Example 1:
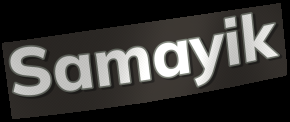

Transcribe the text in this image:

Samayik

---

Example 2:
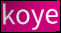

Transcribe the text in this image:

koye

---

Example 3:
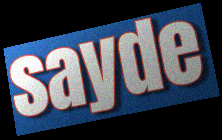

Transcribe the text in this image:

sayde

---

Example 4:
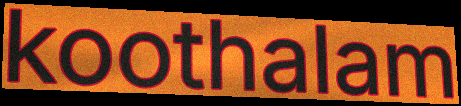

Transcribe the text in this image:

koothalam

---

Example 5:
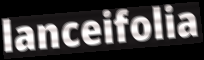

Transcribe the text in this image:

lanceifolia